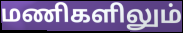
மணிகளிலும்